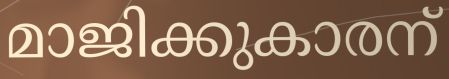
മാജിക്കുകാരന്